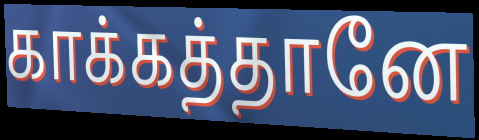
காக்கத்தானே